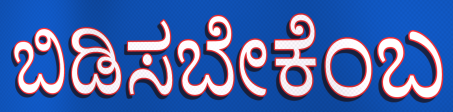
ಬಿಡಿಸಬೇಕೆಂಬ